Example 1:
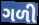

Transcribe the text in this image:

ગળી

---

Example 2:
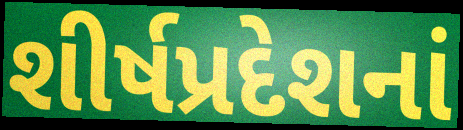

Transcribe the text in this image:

શીર્ષપ્રદેશનાં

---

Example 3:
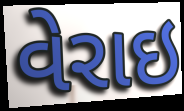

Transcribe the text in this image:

વેરાઇ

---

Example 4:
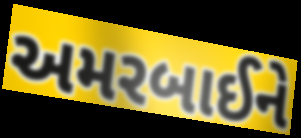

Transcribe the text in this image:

અમરબાઈને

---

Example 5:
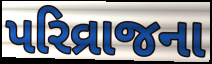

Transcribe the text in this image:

પરિવ્રાજના